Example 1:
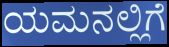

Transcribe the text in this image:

ಯಮನಲ್ಲಿಗೆ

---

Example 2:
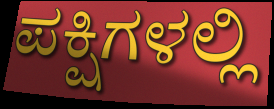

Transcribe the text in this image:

ಪಕ್ಷಿಗಳಲ್ಲಿ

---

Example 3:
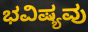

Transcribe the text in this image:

ಭವಿಷ್ಯವು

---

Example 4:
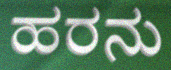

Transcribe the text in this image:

ಹರನು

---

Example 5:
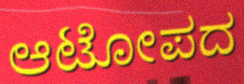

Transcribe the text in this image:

ಆಟೋಪದ